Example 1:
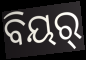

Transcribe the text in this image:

ବିୟର୍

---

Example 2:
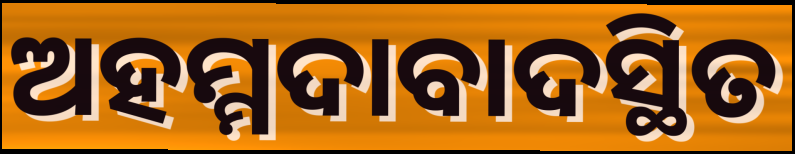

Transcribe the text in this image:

ଅହମ୍ମଦାବାଦସ୍ଥିତ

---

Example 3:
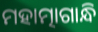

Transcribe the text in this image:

ମହାତ୍ମାଗାନ୍ଧି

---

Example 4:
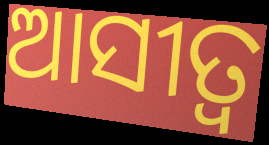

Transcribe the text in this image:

ଆସୀତ୍ବ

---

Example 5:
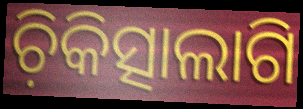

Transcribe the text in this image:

ଚ଼ିକିତ୍ସାଲାଗି